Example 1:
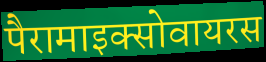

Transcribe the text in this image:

पैरामाइक्सोवायरस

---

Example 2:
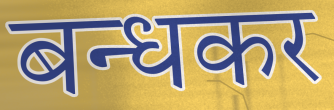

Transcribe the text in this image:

बन्धकर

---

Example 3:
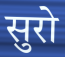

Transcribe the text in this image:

सुरो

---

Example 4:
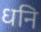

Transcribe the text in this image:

धनि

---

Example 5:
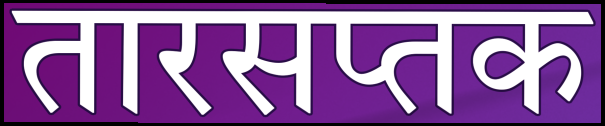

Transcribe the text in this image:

तारसप्तक